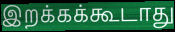
இறக்கக்கூடாது